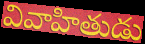
వివాహితుడు